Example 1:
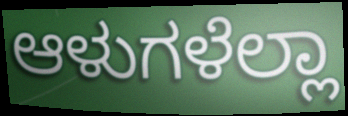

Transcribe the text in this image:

ಆಳುಗಳೆಲ್ಲಾ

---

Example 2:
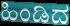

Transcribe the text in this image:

ಹಿಂಡಿದ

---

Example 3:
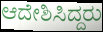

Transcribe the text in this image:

ಆದೇಶಿಸಿದ್ದರು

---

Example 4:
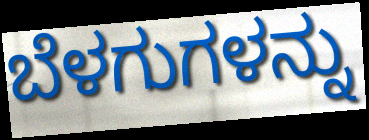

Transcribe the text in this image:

ಬೆಳಗುಗಳನ್ನು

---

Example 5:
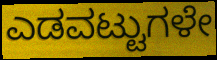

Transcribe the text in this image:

ಎಡವಟ್ಟುಗಳೇ